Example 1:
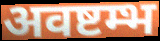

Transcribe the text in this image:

अवष्टम्भ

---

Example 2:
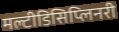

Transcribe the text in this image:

मल्टीडिसिप्लिनरी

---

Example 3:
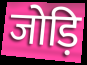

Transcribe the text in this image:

जोड़ि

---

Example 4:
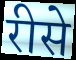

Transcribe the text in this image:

रीसे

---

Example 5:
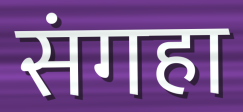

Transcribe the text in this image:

संगहा